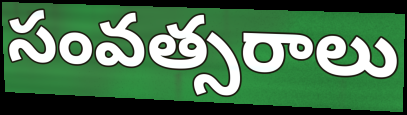
సంవత్సరాలు